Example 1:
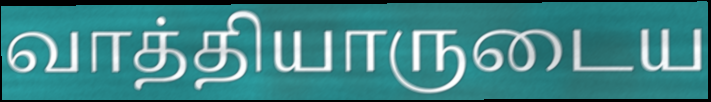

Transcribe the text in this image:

வாத்தியாருடைய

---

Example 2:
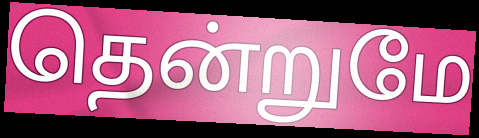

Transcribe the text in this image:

தென்றுமே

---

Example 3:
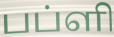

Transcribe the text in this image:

பப்ளி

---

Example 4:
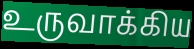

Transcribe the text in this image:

உருவாக்கிய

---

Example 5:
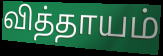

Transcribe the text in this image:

வித்தாயம்